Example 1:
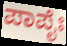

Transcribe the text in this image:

ಪಾಪೈಃ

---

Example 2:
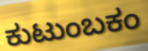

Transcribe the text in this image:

ಕುಟುಂಬಕಂ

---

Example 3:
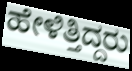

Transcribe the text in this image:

ಹೇಳಿತ್ತಿದ್ದರು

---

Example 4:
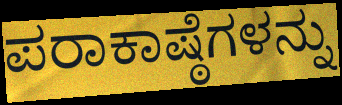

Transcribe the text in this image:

ಪರಾಕಾಷ್ಠೆಗಳನ್ನು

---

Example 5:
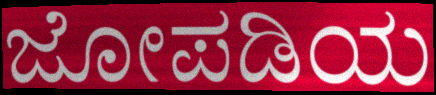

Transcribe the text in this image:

ಜೋಪಡಿಯ